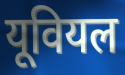
यूवियल